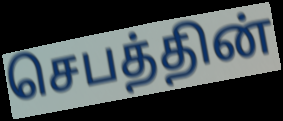
செபத்தின்